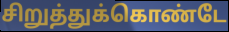
சிறுத்துக்கொண்டே